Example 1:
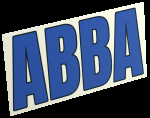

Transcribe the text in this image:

ABBA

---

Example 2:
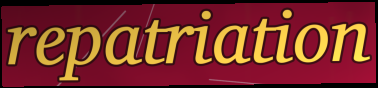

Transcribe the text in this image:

repatriation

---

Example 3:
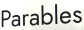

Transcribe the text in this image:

Parables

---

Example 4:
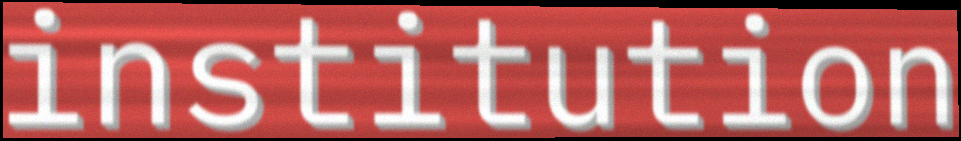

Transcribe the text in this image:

institution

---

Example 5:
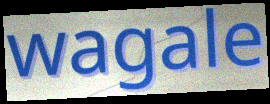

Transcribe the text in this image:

wagale